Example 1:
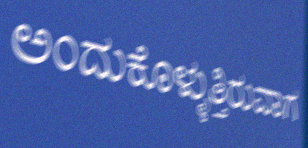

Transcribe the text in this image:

ಅಂದುಕೊಳ್ಳುತ್ತಿರುವಾಗ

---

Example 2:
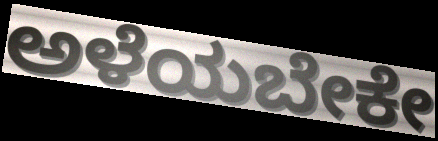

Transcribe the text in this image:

ಅಳೆಯಬೇಕೇ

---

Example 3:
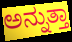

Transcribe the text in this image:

ಅನ್ನುತ್ತಾ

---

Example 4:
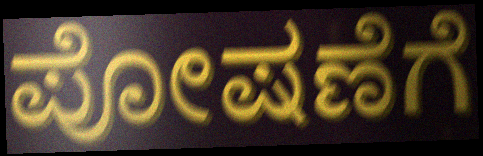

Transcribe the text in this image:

ಪೋಷಣೆಗೆ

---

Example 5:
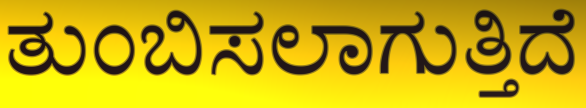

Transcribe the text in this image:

ತುಂಬಿಸಲಾಗುತ್ತಿದೆ